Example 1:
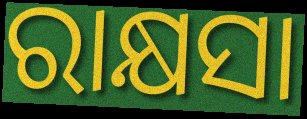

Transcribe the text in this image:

ରାକ୍ଷସା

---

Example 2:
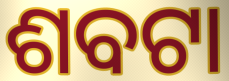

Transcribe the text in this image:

ଶବଟା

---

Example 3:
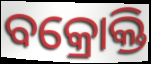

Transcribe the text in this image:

ବକ୍ରୋକ୍ତି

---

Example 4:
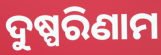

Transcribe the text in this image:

ଦୁଷ୍ପରିଣାମ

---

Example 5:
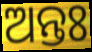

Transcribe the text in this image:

ଅନ୍ତଃ